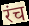
रंच